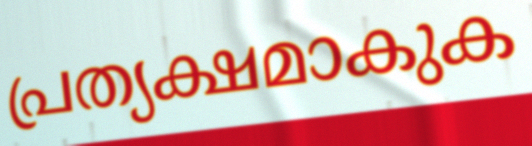
പ്രത്യക്ഷമാകുക